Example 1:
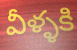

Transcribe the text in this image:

వీళ్ళకి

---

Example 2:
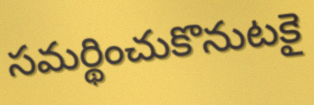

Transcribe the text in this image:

సమర్థించుకొనుటకై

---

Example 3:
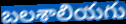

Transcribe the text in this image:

బలశాలియగు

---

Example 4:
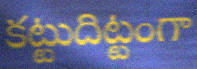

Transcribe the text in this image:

కట్టుదిట్టంగా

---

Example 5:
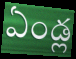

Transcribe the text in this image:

ఏండ్ల